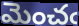
మెంచఁ